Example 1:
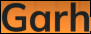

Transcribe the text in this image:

Garh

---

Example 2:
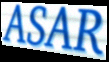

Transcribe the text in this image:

ASAR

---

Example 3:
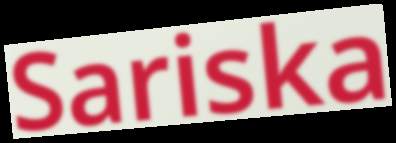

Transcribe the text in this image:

Sariska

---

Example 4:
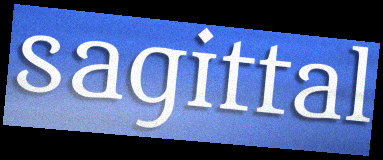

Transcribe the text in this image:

sagittal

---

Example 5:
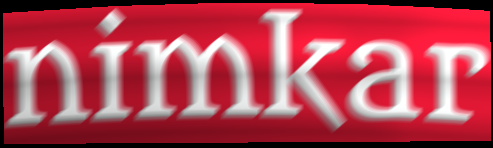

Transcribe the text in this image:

nimkar